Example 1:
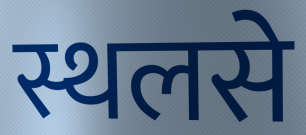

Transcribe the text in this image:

स्थलसे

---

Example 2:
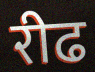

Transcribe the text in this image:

रीढ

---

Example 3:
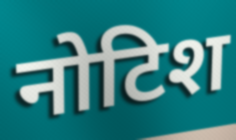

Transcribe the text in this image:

नोटिश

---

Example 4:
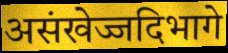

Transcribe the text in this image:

असंखेज्जदिभागे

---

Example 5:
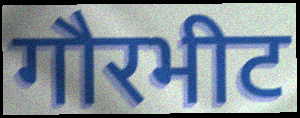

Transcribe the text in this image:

गौरभीट